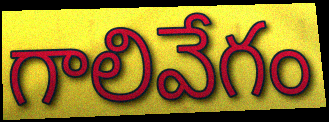
గాలివేగం